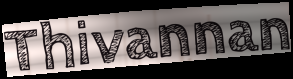
Thivannan